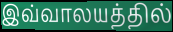
இவ்வாலயத்தில்